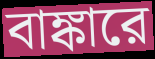
বাঙ্কারে